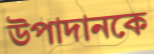
উপাদানকে